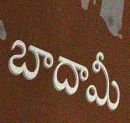
బాదామీ